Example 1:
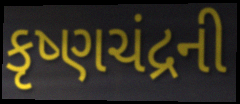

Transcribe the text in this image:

કૃષ્ણચંદ્રની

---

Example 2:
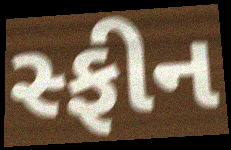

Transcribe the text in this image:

સ્ફીન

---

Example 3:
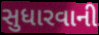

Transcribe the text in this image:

સુધારવાની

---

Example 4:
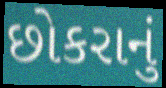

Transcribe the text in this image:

છોકરાનું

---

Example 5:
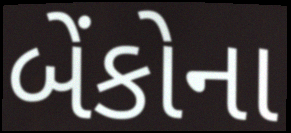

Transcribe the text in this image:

બેંકોના